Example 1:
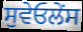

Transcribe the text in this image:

ਸੁਵੇਓਲੇਂਸ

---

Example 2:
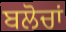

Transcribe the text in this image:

ਬਲੋਚਾਂ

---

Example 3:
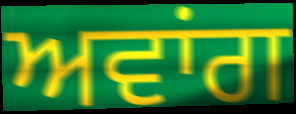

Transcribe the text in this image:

ਅਵਾਂਗ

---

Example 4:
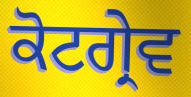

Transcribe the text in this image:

ਕੋਟਗ੍ਰੇਵ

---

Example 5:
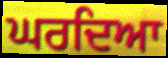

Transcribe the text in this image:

ਘਰਦਿਆ